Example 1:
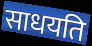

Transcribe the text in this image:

साधयति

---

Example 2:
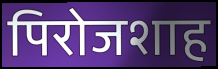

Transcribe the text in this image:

पिरोजशाह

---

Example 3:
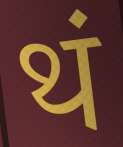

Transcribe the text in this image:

थं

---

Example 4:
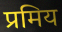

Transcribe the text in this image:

प्रमिय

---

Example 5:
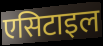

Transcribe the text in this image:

एसिटाइल